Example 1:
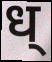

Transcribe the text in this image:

ध्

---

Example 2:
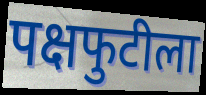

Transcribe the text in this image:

पक्षफुटीला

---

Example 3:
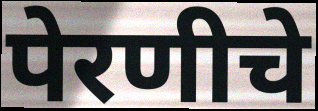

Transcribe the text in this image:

पेरणीचे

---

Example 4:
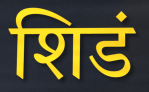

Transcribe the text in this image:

शिडं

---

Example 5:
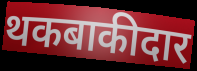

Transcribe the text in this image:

थकबाकीदार